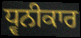
ਧ੍ਵਨੀਕਾਰ